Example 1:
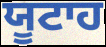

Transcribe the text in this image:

ਯੂਟਾਹ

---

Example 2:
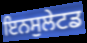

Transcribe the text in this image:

ਇਨਸੁਲੇਟਡ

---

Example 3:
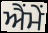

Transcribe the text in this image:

ਐਂਮੇਂ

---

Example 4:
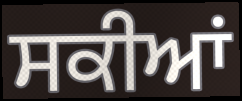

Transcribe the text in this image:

ਸਕੀਆਂ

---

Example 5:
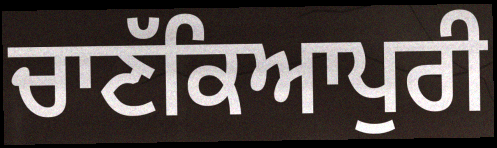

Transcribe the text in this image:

ਚਾਣੱਕਿਆਪੁਰੀ